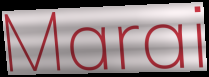
Marai